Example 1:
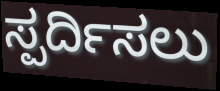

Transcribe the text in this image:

ಸ್ಪರ್ದಿಸಲು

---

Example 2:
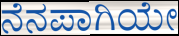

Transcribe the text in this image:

ನೆನಪಾಗಿಯೇ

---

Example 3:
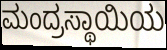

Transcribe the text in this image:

ಮಂದ್ರಸ್ಥಾಯಿಯ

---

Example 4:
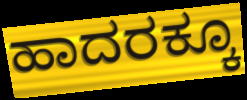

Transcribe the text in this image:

ಹಾದರಕ್ಕೂ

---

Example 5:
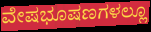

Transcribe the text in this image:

ವೇಷಭೂಷಣಗಳಲ್ಲೂ